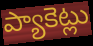
ప్యాకెట్లు